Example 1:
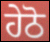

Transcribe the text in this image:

ਹੇਠੋ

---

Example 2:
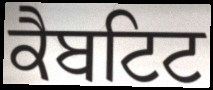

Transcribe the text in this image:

ਕੈਬਟਿਟ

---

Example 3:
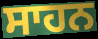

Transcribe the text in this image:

ਸਾਹਨ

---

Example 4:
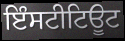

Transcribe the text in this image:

ਇੰਸਟੀਟਿਊਟ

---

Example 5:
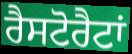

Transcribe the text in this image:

ਰੈਸਟੋਰੈਟਾਂ